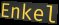
Enkel